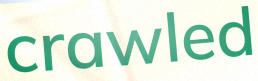
crawled